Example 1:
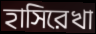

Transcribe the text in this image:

হাসিরেখা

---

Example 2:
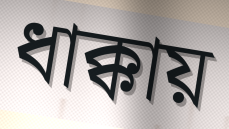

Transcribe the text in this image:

ধাক্কায়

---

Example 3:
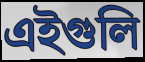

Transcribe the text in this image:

এইগুলি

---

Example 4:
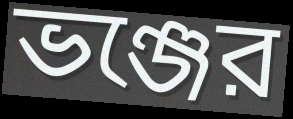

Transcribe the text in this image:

ভঞ্জের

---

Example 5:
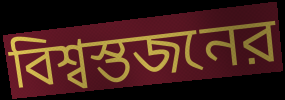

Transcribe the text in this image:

বিশ্বস্তজনের